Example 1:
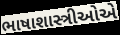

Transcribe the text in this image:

ભાષાશાસ્ત્રીઓએ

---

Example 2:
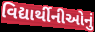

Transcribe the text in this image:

વિદ્યાર્થીનીઓનું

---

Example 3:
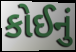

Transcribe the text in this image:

કોઈનું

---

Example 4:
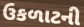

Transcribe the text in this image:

ઉકળાટની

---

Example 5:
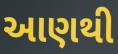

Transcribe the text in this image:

આણથી